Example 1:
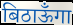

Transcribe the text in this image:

बिठाऊँगा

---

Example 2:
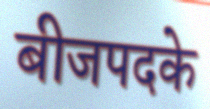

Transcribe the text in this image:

बीजपदके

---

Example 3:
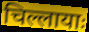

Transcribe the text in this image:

चिल्लायाः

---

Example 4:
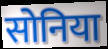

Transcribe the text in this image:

सोनिया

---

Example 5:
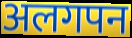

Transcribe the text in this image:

अलगपन